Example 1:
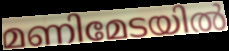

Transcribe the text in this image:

മണിമേടയിൽ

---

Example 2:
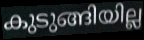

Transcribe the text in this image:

കുടുങ്ങിയില്ല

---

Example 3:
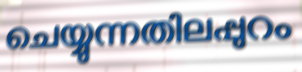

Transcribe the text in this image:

ചെയ്യുന്നതിലപ്പുറം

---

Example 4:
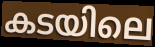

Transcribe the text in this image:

കടയിലെ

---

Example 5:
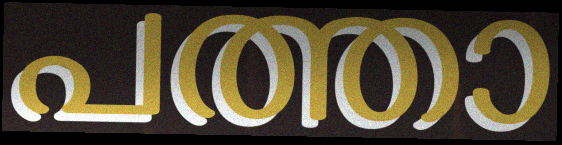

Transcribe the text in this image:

പത്താ